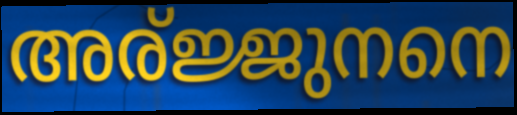
അര്ജ്ജുനനെ